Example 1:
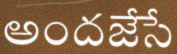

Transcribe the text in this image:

అందజేసే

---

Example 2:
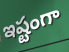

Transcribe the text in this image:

ఇష్టంగా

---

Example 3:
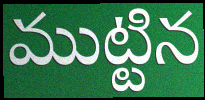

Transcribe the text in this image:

ముట్టిన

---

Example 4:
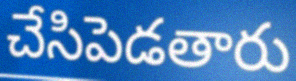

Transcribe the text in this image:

చేసిపెడతారు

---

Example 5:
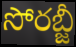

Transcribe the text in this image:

సోరబ్జీ